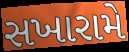
સખારામે